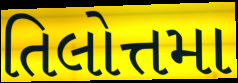
તિલોત્તમા